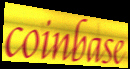
coinbase